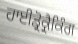
ਹਾਈਡ੍ਰੋਕ੍ਰੈਕਿੰਗ